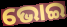
ଭୋଇ